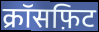
क्रॉसफ़िट